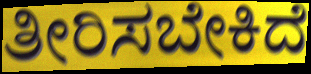
ತೀರಿಸಬೇಕಿದೆ